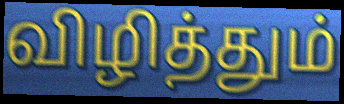
விழித்தும்